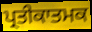
ਪ੍ਰਤੀਕਾਤਮਕ